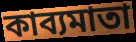
কাব্যমাতা